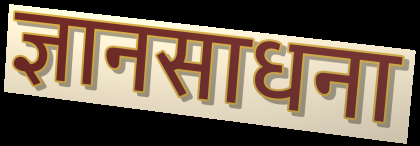
ज्ञानसाधना